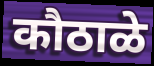
कौठाळे